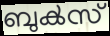
ബുൿസ്